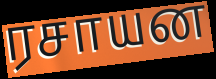
ரசாயன